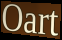
Oart